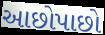
આછોપાછો